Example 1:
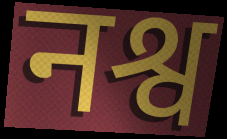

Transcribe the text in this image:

नश्व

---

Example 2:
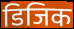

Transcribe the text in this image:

डिजिक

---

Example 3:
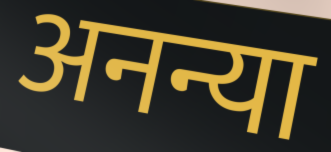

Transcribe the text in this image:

अनन्या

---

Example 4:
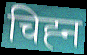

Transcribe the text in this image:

चिह्‍न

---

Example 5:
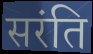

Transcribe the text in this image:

सरंति